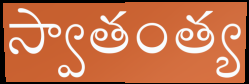
స్వాతంత్య